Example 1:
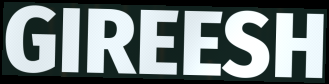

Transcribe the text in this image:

GIREESH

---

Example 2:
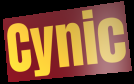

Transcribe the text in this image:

Cynic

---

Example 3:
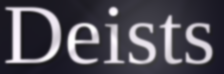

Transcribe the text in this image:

Deists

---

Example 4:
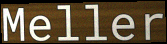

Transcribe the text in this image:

Meller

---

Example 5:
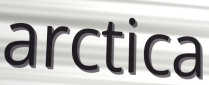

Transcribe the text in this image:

arctica